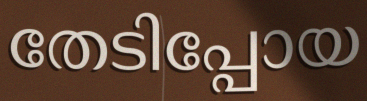
തേടിപ്പോയ